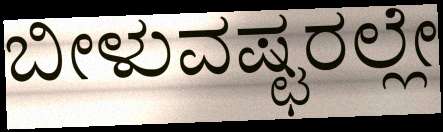
ಬೀಳುವಷ್ಟರಲ್ಲೇ